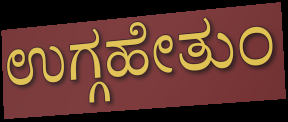
ಉಗ್ಗಹೇತುಂ